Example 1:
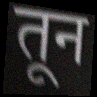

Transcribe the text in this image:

तून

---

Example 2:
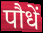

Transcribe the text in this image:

पौधें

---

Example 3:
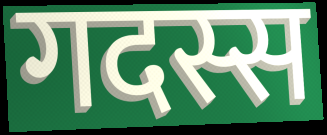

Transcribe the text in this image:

गदस्स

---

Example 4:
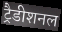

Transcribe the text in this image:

ट्रैडीशनल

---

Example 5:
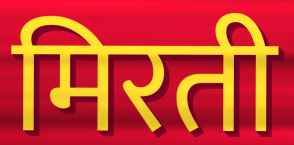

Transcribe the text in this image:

मिरती